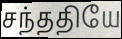
சந்ததியே